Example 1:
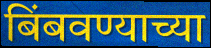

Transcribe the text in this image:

बिंबवण्याच्या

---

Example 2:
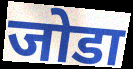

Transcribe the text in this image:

जोडा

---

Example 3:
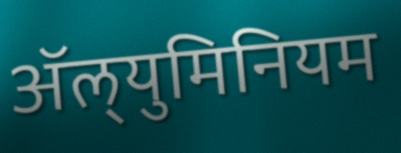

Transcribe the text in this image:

ॲल्युमिनियम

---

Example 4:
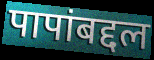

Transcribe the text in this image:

पापांबद्दल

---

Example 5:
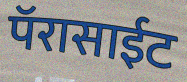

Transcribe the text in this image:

पॅरासाईट